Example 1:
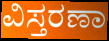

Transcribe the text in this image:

ವಿಸ್ತರಣಾ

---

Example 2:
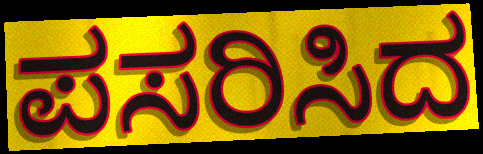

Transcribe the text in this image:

ಪಸರಿಸಿದ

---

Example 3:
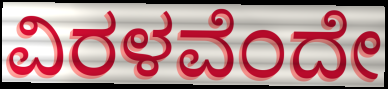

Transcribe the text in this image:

ವಿರಳವೆಂದೇ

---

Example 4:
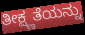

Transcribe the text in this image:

ತೀಕ್ಷ್ಣತೆಯನ್ನು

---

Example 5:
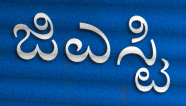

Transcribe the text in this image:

ಜಿಎಸ್ಟಿ